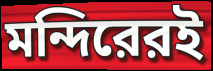
মন্দিরেরই